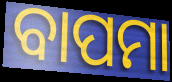
ବାପମା